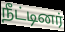
நீட்டினர்